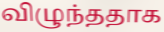
விழுந்ததாக